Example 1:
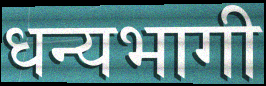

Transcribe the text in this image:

धन्यभागी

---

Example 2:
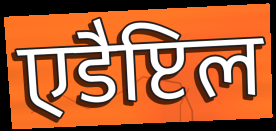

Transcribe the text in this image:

एडैप्टिल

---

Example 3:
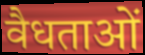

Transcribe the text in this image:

वैधताओं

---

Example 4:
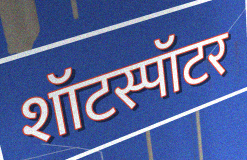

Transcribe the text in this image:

शॉटस्पॉटर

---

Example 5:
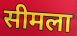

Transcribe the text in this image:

सीमला